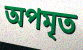
অপমৃত